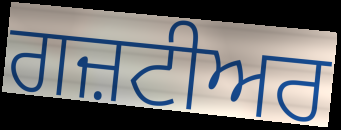
ਗਜ਼ਟੀਅਰ